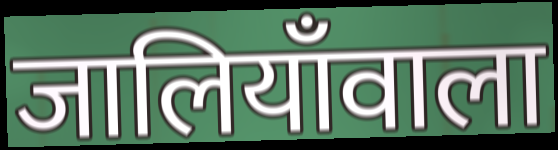
जालियाँवाला